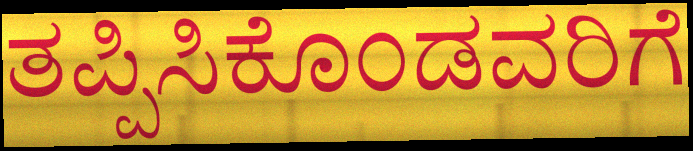
ತಪ್ಪಿಸಿಕೊಂಡವರಿಗೆ